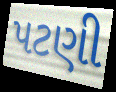
પટણી